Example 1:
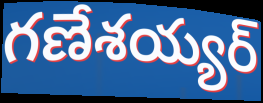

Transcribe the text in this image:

గణేశయ్యర్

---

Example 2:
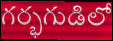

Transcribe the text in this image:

గర్భగుడిలో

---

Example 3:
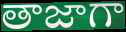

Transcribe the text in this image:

తాజాగా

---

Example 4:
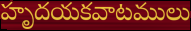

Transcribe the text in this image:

హృదయకవాటములు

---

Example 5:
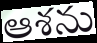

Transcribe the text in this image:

ఆశను